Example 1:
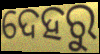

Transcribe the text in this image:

ଦେହରୁ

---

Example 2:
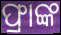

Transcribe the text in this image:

ଫ୍ରାଙ୍କ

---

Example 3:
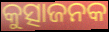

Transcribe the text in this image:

କୁତ୍ସାଜନକ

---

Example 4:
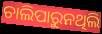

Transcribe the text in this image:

ଚାଲିପାରୁନଥିଲି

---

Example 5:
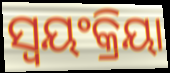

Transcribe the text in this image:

ସ୍ବୟଂକ୍ରିୟା